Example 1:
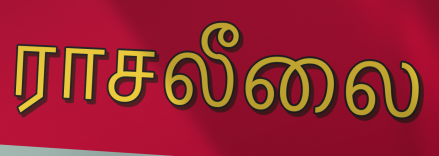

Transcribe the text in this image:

ராசலீலை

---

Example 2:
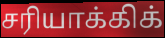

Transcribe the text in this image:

சரியாக்கிக்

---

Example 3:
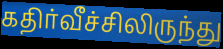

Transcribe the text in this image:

கதிர்வீச்சிலிருந்து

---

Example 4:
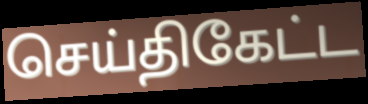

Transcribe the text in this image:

செய்திகேட்ட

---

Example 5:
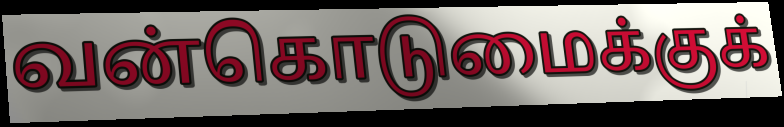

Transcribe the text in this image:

வன்கொடுமைக்குக்